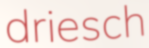
driesch